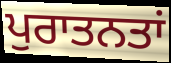
ਪੁਰਾਤਨਤਾਂ